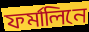
ফর্মালিনে